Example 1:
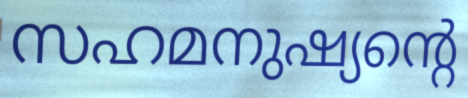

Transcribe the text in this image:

സഹമനുഷ്യന്റെ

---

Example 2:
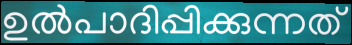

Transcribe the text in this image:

ഉൽപാദിപ്പിക്കുന്നത്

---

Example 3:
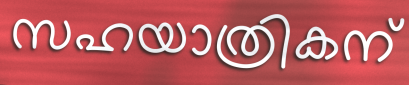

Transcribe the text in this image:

സഹയാത്രികന്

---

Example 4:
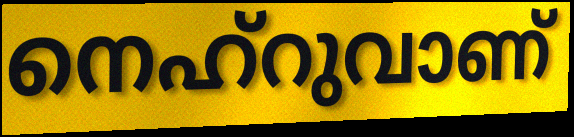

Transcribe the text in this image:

നെഹ്റുവാണ്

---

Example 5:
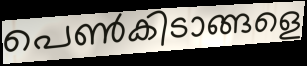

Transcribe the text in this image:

പെൺകിടാങ്ങളെ